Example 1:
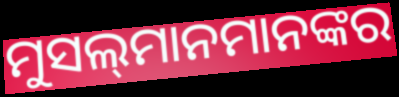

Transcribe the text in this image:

ମୁସଲ୍‌ମାନମାନଙ୍କର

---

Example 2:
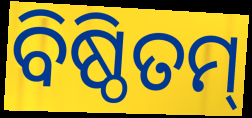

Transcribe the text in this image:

ବିଷ୍ଠିତମ୍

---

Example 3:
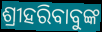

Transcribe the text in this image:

ଶ୍ରୀହରିବାବୁଙ୍କ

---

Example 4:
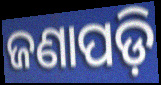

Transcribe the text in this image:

ଜଣାପଡ଼ି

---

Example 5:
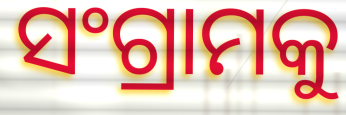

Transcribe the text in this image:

ସଂଗ୍ରାମକୁ